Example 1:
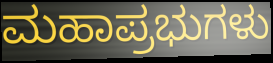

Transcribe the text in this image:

ಮಹಾಪ್ರಭುಗಳು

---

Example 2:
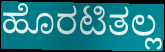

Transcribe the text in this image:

ಹೊರಟಿತಲ್ಲ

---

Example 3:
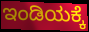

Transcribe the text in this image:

ಇಂಡಿಯಕ್ಕೆ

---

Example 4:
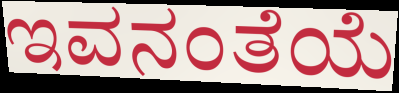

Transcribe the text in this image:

ಇವನಂತೆಯೆ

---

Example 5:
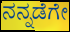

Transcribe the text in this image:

ನನ್ನಡೆಗೇ